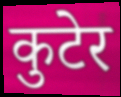
कुटेर